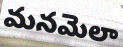
మనమెలా